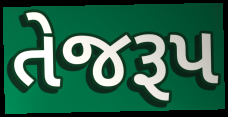
તેજરૂપ